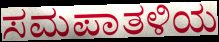
ಸಮಪಾತಳಿಯ